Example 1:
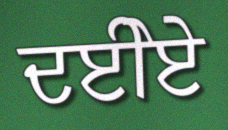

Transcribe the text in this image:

ਦਈੇਏ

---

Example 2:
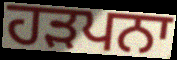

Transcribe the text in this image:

ਹੜਪਨਾ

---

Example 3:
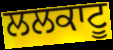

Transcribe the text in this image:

ਲਲਕਾਟੂ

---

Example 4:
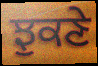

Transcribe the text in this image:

ਝੁਕਣੇ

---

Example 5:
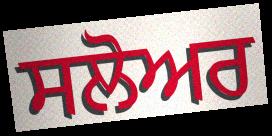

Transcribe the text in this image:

ਸਲੋਅਰ